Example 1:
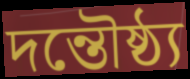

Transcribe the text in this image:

দন্তৌষ্ঠ্য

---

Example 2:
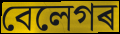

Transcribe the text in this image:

বেলেগৰ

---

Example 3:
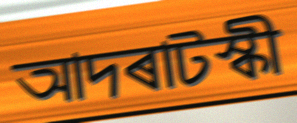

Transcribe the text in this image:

আদৰাটস্কী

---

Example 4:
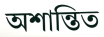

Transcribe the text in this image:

অশান্তিত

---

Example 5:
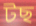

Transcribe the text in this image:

টছ